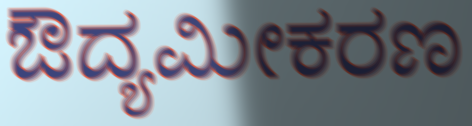
ಔದ್ಯಮೀಕರಣ